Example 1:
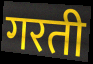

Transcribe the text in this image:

गरती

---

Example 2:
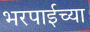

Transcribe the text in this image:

भरपाईच्या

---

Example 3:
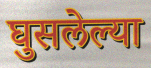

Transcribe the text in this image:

घुसलेल्या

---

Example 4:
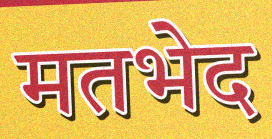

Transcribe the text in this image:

मतभेद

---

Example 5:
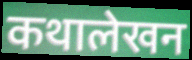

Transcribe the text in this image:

कथालेखन